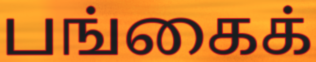
பங்கைக்